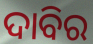
ଦାବିର